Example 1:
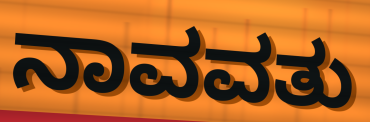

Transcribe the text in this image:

ನಾವವತು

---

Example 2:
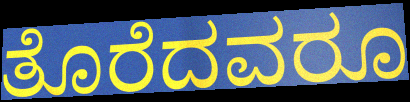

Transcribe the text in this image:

ತೊರೆದವರೂ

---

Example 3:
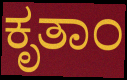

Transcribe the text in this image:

ಕೃತಾಂ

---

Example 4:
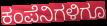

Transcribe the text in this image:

ಕಂಪೆನಿಗಳಿಗೂ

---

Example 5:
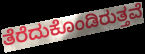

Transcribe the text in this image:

ತೆರೆದುಕೊಂಡಿರುತ್ತವೆ